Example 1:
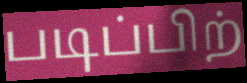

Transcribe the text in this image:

படிப்பிற்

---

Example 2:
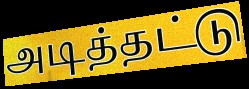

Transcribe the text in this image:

அடித்தட்டு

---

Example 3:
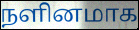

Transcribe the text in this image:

நளினமாக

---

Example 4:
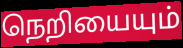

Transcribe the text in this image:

நெறியையும்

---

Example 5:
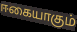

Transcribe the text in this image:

ஈகையாகும்